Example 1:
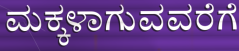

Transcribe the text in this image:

ಮಕ್ಕಳಾಗುವವರೆಗೆ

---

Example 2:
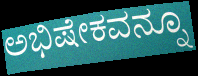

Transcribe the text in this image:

ಅಭಿಷೇಕವನ್ನೂ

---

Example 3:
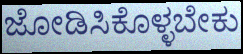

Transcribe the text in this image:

ಜೋಡಿಸಿಕೊಳ್ಳಬೇಕು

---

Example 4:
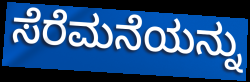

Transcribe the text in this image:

ಸೆರೆಮನೆಯನ್ನು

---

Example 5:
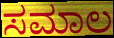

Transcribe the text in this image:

ಸಮಾಲ